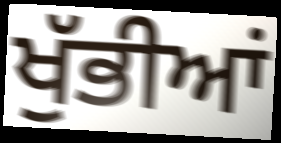
ਖੁੱਭੀਆਂ